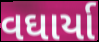
વઘાર્યા